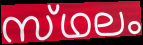
സ്‌ഥലം